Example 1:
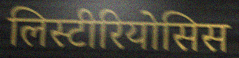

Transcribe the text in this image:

लिस्टीरियोसिस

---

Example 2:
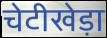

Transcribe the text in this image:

चेटीखेड़ा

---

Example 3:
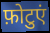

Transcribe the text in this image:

फ़ोटुएं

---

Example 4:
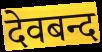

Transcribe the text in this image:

देवबन्द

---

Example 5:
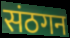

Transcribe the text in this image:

संठगन